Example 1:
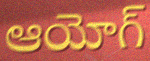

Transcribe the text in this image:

ఆయోగ్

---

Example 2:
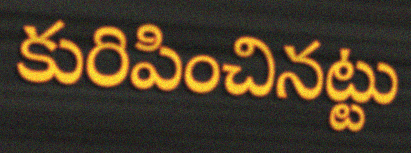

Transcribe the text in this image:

కురిపించినట్టు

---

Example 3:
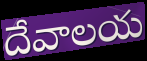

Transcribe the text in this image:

దేవాలయ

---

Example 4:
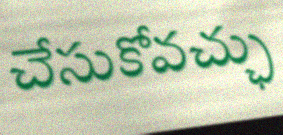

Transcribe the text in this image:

చేసుకోవచ్ఛు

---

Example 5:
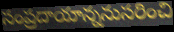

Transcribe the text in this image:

సంప్రదాయాన్ననుసరించి